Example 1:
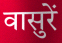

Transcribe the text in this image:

वासुरें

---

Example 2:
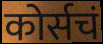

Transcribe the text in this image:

कोर्सचं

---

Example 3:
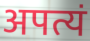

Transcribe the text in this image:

अपत्यं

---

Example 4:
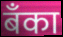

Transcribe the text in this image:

बँका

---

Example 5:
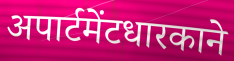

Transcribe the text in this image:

अपार्टमेंटधारकाने